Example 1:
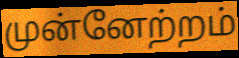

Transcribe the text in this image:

முன்னேற்றம்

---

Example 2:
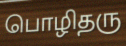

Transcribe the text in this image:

பொழிதரு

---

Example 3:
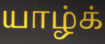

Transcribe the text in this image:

யாழ்க்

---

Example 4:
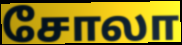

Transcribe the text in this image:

சோலா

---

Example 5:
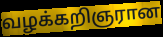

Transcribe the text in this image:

வழக்கறிஞரான